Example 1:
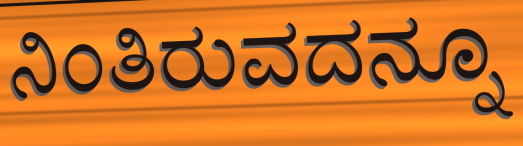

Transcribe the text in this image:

ನಿಂತಿರುವದನ್ನೂ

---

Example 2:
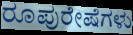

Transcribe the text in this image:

ರೂಪುರೇಷೆಗಳು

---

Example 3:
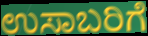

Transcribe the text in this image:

ಉಸಾಬರಿಗೆ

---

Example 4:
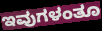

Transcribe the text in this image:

ಇವುಗಳಂತೂ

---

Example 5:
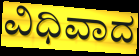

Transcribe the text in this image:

ವಿಧಿವಾದ